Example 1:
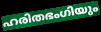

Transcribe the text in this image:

ഹരിതഭംഗിയും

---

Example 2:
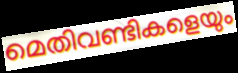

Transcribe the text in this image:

മെതിവണ്ടികളെയും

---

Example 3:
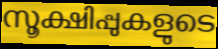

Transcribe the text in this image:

സൂക്ഷിപ്പുകളുടെ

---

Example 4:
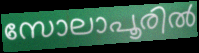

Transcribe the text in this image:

സോലാപൂരിൽ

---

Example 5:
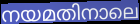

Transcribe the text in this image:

നയമതിനാലെ